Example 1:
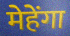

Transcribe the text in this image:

मेहेंगा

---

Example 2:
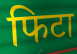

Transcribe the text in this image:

फिटा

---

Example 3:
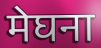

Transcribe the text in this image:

मेघना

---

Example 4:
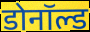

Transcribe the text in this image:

डोनॉल्ड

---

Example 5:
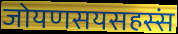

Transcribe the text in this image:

जोयणसयसहस्सं